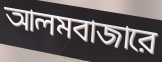
আলমবাজারে